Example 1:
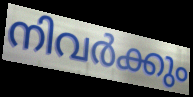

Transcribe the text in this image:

നിവർക്കും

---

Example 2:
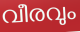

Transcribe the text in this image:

വീരവും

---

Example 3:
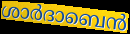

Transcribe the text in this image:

ശാർദാബെൻ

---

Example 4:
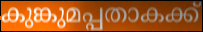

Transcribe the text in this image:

കുങ്കുമപ്പതാകക്ക്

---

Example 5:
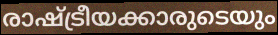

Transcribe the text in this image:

രാഷ്ട്രീയക്കാരുടെയും